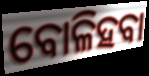
ବୋଳିହବା